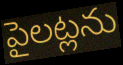
పైలట్లను